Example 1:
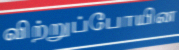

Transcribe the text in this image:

விற்றுப்போயின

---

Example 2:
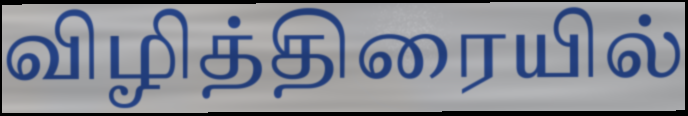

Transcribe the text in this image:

விழித்திரையில்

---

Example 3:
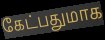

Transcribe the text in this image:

கேட்பதுமாக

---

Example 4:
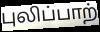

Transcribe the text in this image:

புலிப்பாற்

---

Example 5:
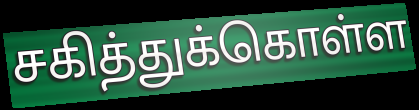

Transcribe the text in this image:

சகித்துக்கொள்ள